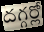
దగ్గర్లో